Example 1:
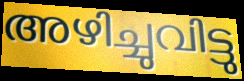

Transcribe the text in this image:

അഴിച്ചുവിട്ടു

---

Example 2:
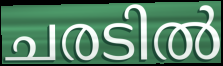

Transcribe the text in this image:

ചരടിൽ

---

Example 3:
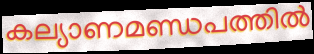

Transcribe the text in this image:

കല്യാണമണ്ഡപത്തിൽ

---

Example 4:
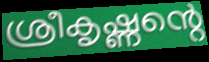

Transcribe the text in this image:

ശ്രീകൃഷ്ണന്റെ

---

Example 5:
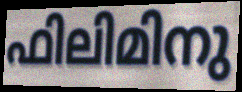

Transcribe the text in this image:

ഫിലിമിനു